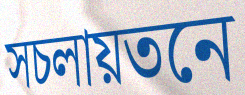
সচলায়তনে